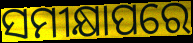
ସମୀକ୍ଷାପରେ